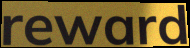
reward